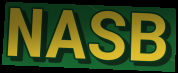
NASB